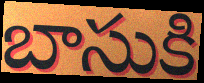
బాసుకి